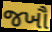
જખૌ